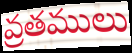
వ్రతములు